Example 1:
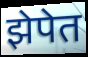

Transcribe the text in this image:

झेपेत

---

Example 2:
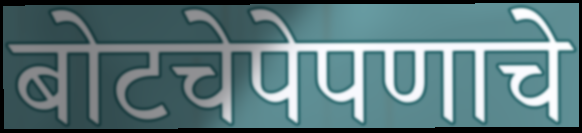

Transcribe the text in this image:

बोटचेपेपणाचे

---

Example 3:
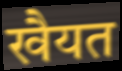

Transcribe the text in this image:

खैयत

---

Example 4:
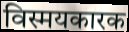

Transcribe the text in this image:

विस्मयकारक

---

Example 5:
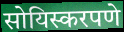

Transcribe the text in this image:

सोयिस्करपणे